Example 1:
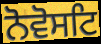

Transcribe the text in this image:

ਨੋਵੋਸਟਿ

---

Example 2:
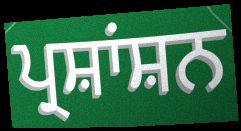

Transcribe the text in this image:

ਪ੍ਰਸ਼ਾਂਸ਼ਨ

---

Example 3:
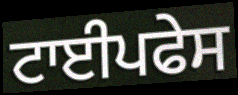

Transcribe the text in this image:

ਟਾਈਪਫੇਸ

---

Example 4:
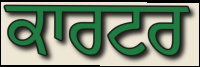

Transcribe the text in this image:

ਕਾਰਟਰ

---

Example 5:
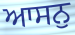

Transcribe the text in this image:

ਆਸਨੁ